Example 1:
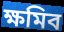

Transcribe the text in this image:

ক্ষমিব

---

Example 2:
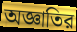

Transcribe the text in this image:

অজ্ঞাতির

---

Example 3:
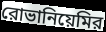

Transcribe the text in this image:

রোভানিয়েমির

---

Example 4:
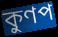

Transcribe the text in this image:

কুণপ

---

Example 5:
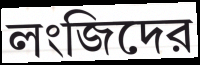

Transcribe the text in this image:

লংজিদের